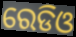
ରେଡିଓ